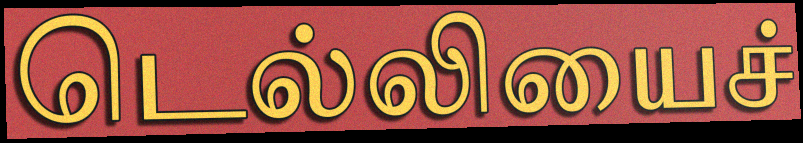
டெல்லியைச்